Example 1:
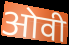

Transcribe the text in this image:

ओवी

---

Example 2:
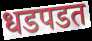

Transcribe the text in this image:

धडपडत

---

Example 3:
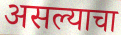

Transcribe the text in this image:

असल्याचा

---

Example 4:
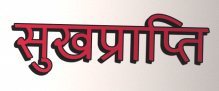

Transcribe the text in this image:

सुखप्राप्ति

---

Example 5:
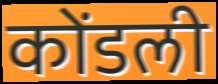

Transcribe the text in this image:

कोंडली